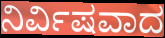
ನಿರ್ವಿಷವಾದ